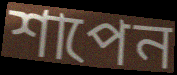
শাপেন